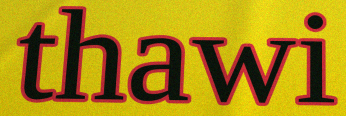
thawi